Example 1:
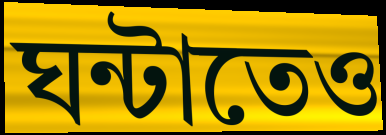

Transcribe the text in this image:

ঘন্টাতেও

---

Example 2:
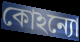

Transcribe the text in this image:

কোঽন্যো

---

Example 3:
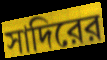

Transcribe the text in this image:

সাদিরের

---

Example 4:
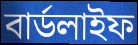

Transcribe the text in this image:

বার্ডলাইফ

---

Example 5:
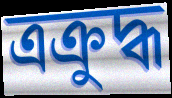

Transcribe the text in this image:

ত্রক্রুদ্ধ